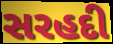
સરહદી